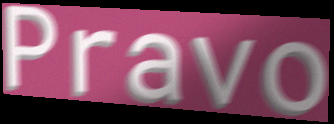
Pravo